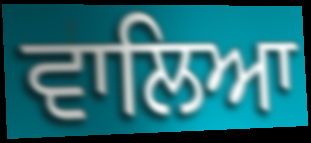
ਵਾਲਿਆ